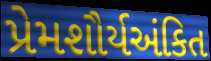
પ્રેમશૌર્યઅંકિત